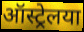
ऑस्ट्रेलया